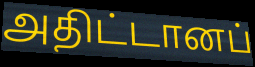
அதிட்டானப்